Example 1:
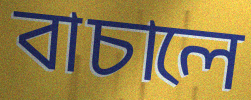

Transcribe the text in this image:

বাচালে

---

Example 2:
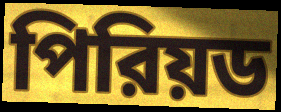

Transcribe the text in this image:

পিরিয়ড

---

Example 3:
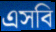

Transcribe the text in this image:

এসবি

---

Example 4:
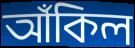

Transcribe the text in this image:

আঁকিল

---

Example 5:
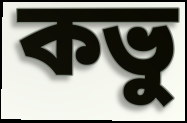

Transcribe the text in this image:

কভু